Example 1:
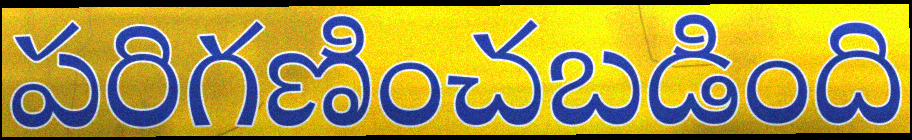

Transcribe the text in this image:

పరిగణించబడింది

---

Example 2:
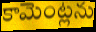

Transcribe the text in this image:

కామెంట్లను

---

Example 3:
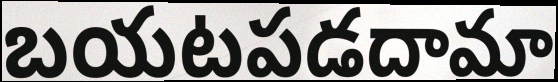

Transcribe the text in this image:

బయటపడదామా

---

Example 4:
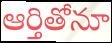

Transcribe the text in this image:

ఆర్తితోనూ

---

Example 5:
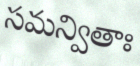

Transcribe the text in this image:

సమన్వితాః